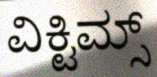
ವಿಕ್ಟಿಮ್ಸ್